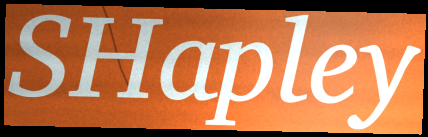
SHapley